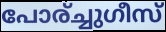
പോര്ച്ചുഗീസ്